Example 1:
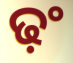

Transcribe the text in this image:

ଢ଼ଂ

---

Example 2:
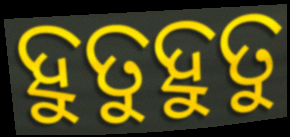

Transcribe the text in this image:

ହୁତୁହୁତୁ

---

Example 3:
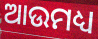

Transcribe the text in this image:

ଆଉମଧ୍ୟ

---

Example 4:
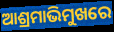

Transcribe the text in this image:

ଆଶ୍ରମାଭିମୁଖରେ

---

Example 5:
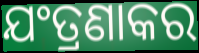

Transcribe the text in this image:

ଯଂତ୍ରଣାକର